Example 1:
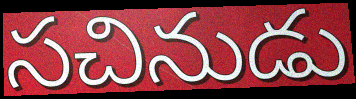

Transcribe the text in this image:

సచినుడు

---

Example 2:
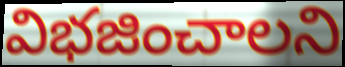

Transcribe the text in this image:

విభజించాలని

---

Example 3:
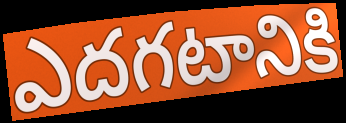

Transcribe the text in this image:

ఎదగటానికి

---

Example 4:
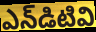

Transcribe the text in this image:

ఎన్‌డిటివి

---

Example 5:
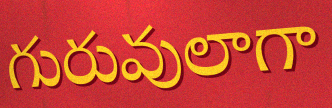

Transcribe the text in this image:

గురువులాగా